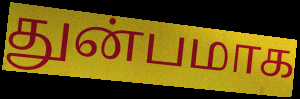
துன்பமாக